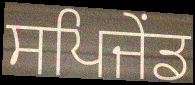
ਸਪਿਜੇਂਡ